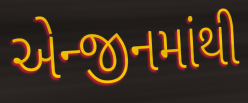
એન્જીનમાંથી